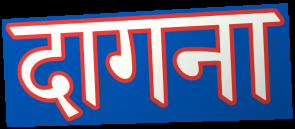
दागना